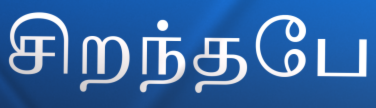
சிறந்தபே